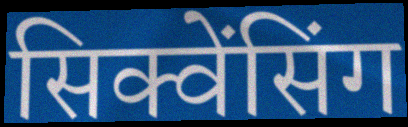
सिक्‍वेंसिंग